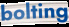
bolting